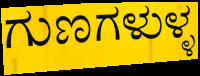
ಗುಣಗಳುಳ್ಳ